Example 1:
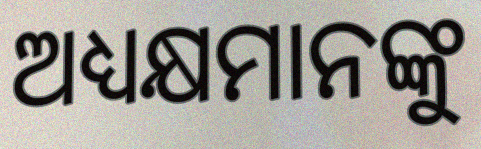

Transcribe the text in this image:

ଅଧ୍ୟକ୍ଷମାନଙ୍କୁ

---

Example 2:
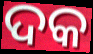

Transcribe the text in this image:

ଦକ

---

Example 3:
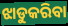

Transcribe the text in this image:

ଝାଡୁକରିବା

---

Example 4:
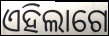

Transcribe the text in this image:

ଏହିଲାଗେ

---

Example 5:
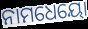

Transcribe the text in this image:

ନାମଧେୟୋ